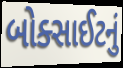
બોક્સાઈટનું